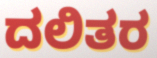
ದಲಿತರ